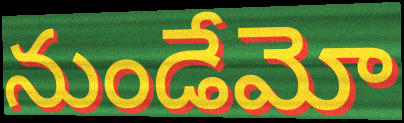
నుండేమో